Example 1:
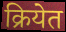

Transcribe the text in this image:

क्रियेत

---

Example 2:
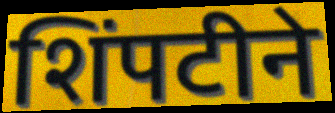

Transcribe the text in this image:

शिंपटीने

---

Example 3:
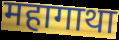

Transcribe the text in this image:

महागाथा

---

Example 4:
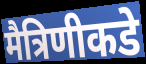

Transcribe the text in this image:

मैत्रिणीकडे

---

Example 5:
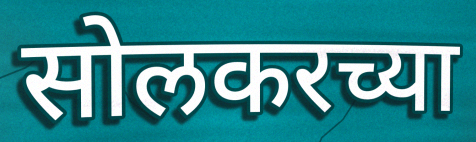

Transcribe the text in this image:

सोलकरच्या